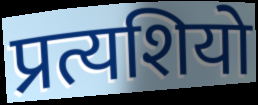
प्रत्यशियो